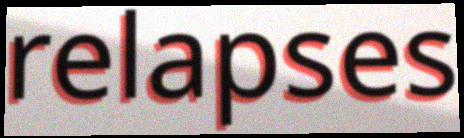
relapses